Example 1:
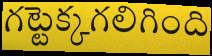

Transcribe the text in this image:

గట్టెక్కగలిగింది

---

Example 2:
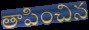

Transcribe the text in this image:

తాపించిన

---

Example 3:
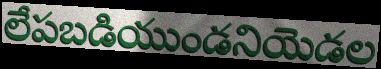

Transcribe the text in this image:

లేపబడియుండనియెడల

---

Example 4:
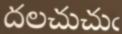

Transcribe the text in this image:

దలచుచుఁ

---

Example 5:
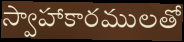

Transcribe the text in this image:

స్వాహాకారములతో